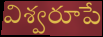
విశ్వరూపే